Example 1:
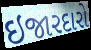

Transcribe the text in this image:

ઇજારદારો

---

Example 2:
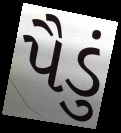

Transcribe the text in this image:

પૈડું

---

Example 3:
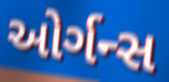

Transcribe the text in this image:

ઓર્ગન્સ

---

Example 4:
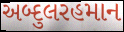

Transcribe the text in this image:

અબ્દુલરહમાન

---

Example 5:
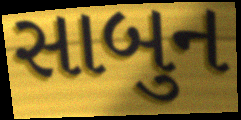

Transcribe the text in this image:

સાબુન